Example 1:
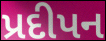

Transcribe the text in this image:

પ્રદીપન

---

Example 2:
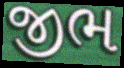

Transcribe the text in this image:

જીભ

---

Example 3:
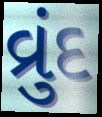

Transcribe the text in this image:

વ્રુંદ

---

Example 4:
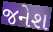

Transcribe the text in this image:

જનેશ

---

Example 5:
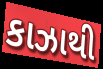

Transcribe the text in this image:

કાઝાથી